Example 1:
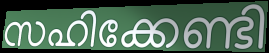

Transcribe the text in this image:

സഹിക്കേണ്ടി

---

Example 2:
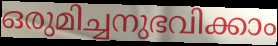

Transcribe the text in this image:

ഒരുമിച്ചനുഭവിക്കാം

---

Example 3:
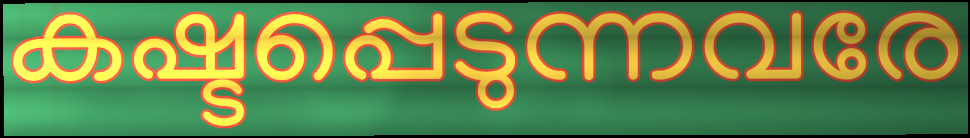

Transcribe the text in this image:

കഷ്ടപ്പെടുന്നവരേ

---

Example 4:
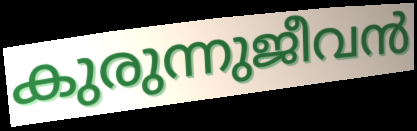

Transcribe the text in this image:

കുരുന്നുജീവൻ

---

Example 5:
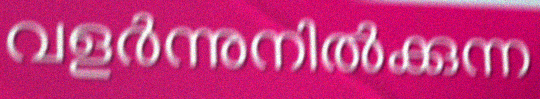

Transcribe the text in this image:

വളർന്നുനിൽക്കുന്ന